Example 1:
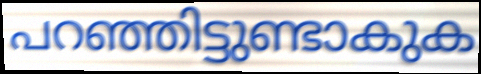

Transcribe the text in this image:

പറഞ്ഞിട്ടുണ്ടാകുക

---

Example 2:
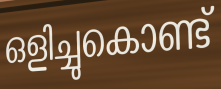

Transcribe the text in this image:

ഒളിച്ചുകൊണ്ട്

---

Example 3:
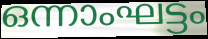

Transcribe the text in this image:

ഒന്നാംഘട്ടം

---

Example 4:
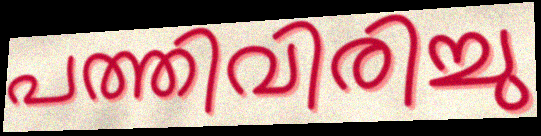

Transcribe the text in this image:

പത്തിവിരിച്ചു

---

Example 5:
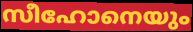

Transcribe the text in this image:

സീഹോനെയും